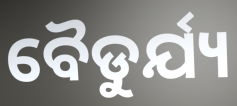
ବୈଡୁର୍ଯ୍ୟ